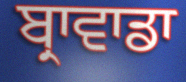
ਬ੍ਰਾਵਾਡਾ